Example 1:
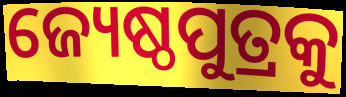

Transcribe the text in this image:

ଜ୍ୟେଷ୍ଠପୁତ୍ରକୁ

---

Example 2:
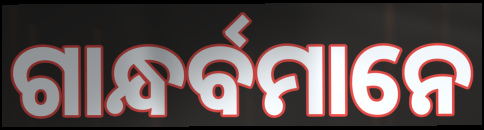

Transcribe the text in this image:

ଗାନ୍ଧର୍ବମାନେ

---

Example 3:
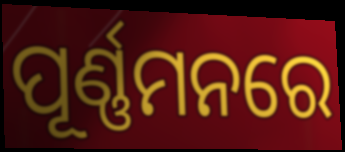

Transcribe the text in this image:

ପୂର୍ଣ୍ଣମନରେ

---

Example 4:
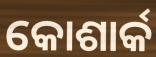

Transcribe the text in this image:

କୋଶାର୍କ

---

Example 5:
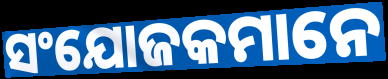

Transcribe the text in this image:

ସଂଯୋଜକମାନେ